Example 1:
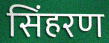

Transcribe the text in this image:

सिंहरण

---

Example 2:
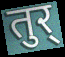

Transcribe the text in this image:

तुर्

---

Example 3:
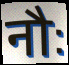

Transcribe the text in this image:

नौः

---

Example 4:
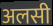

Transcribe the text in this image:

अलसी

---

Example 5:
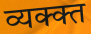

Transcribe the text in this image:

व्यक्क्त